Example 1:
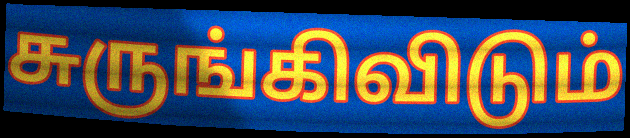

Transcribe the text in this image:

சுருங்கிவிடும்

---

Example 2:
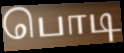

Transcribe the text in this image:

பொடி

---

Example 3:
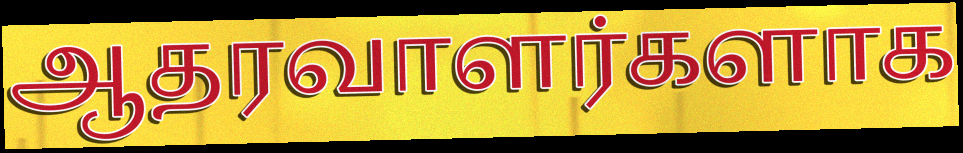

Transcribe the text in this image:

ஆதரவாளர்களாக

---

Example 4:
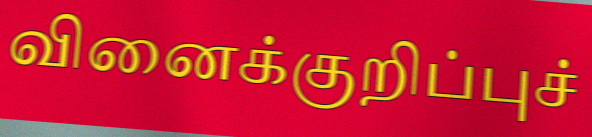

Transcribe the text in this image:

வினைக்குறிப்புச்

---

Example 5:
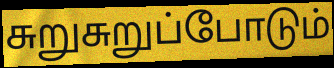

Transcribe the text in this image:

சுறுசுறுப்போடும்